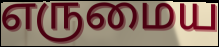
எருமைய